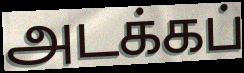
அடக்கப்